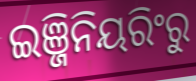
ଇଞ୍ଜିନିୟରିଂରୁ